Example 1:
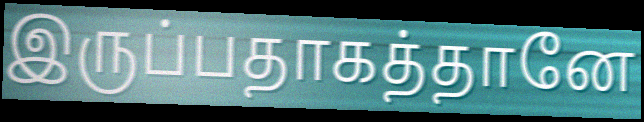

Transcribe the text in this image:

இருப்பதாகத்தானே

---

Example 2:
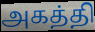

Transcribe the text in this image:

அகத்தி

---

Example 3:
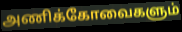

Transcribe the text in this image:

அணிக்கோவைகளும்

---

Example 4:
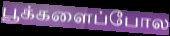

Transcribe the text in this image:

பூக்களைப்போல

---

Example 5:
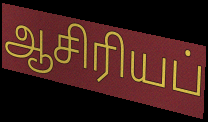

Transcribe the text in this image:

ஆசிரியப்